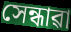
সেন্ধাৱা